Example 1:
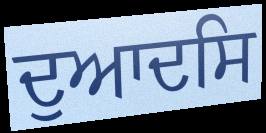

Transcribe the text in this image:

ਦੁਆਦਸਿ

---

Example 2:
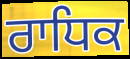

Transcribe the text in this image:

ਰਾਧਿਕ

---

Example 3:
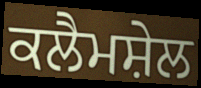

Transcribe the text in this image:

ਕਲੈਮਸ਼ੇਲ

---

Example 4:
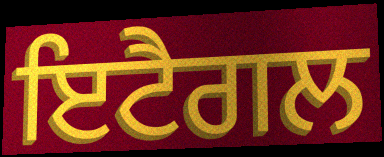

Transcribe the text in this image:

ਇਟੈਗਲ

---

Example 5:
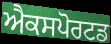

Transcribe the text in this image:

ਐਕਸਪੋਰਟਡ